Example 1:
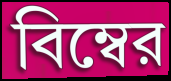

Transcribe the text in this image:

বিম্বের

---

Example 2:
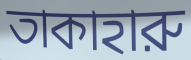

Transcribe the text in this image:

তাকাহারু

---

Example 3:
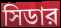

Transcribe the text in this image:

সিডার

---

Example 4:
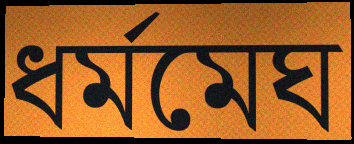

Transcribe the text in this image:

ধর্মমেঘ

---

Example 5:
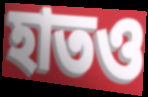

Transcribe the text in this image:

হাতও